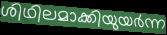
ശിഥിലമാക്കിയുയർന്ന